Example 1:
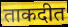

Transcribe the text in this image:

ताकदीत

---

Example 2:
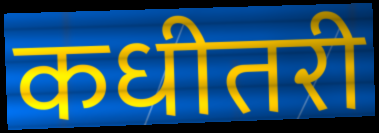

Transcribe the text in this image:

कधीतरी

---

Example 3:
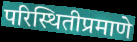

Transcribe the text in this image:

परिस्थितीप्रमाणे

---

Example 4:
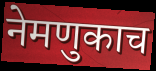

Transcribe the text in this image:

नेमणुकाच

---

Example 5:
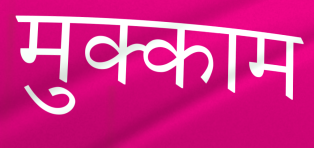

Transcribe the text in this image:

मुक्‍काम